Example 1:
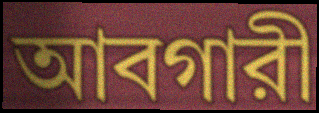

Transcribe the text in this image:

আবগারী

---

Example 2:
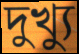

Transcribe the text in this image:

দুখ্যু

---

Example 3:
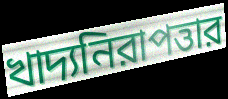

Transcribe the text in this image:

খাদ্যনিরাপত্তার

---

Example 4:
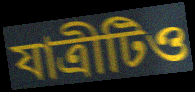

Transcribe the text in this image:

যাত্রীটিও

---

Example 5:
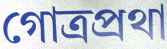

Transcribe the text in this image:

গোত্রপ্রথা